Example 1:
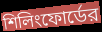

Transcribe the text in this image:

শিলিংফোর্ডের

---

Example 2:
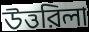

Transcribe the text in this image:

উত্তরিলা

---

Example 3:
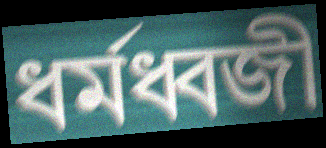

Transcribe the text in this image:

ধর্মধ্বজী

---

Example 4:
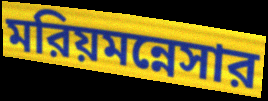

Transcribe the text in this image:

মরিয়মন্নেসার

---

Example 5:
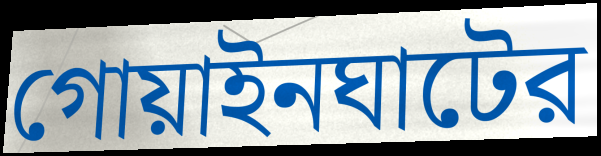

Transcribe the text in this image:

গোয়াইনঘাটের